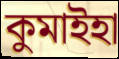
কুমাইহা